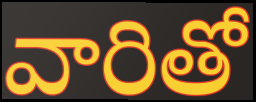
వారితో